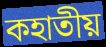
কহাতীয়